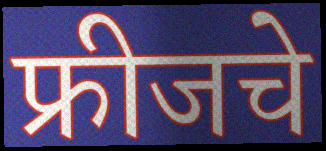
फ्रीजचे